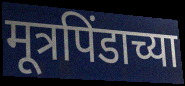
मूत्रपिंडाच्या